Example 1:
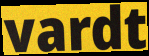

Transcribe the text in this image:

vardt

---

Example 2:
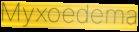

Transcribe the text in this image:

Myxoedema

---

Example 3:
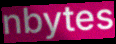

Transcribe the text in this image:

nbytes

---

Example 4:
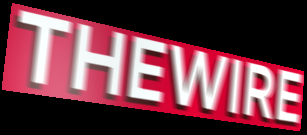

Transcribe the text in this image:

THEWIRE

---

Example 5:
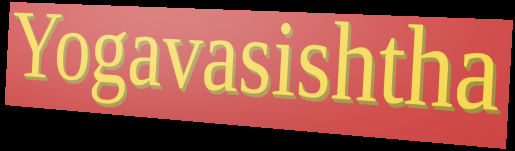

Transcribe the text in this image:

Yogavasishtha